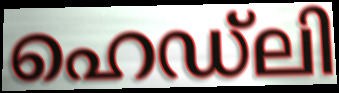
ഹെഡ്ലി